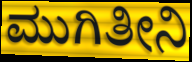
ಮುಗಿತೀನಿ